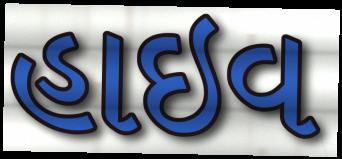
હાઇવ